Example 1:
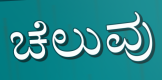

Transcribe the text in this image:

ಚೆಲುವು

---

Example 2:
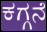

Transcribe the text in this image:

ಕಗ್ಗನೆ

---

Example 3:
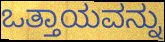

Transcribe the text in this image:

ಒತ್ತಾಯವನ್ನು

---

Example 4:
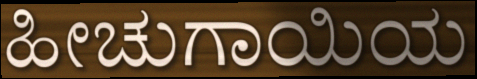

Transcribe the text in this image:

ಹೀಚುಗಾಯಿಯ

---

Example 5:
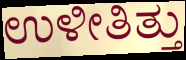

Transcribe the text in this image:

ಉಳೀತಿತ್ತು